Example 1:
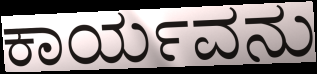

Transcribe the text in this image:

ಕಾರ್ಯವನು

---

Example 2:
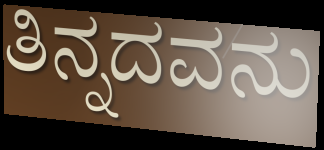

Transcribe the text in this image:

ತಿನ್ನದವನು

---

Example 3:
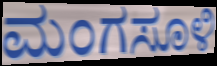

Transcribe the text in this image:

ಮಂಗಸೂಳಿ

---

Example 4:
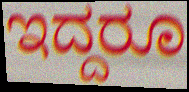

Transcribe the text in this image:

ಇದ್ದರೂ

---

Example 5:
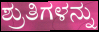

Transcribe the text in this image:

ಶ್ರುತಿಗಳನ್ನು